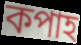
কপাহ